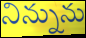
నిన్నును